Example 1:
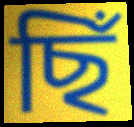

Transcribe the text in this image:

ছিঁ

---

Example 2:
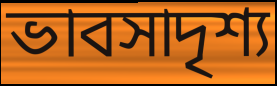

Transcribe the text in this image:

ভাবসাদৃশ্য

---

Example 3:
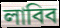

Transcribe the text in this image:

লাবিব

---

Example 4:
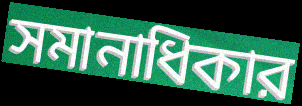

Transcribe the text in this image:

সমানাধিকার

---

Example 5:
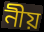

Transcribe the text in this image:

নীয়